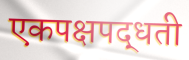
एकपक्षपद्धती